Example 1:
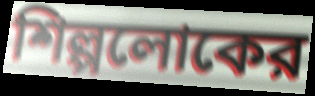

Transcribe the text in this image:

শিল্পলোকের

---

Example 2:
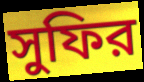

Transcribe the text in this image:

সুফির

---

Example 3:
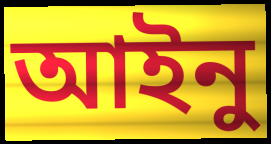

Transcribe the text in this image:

আইনু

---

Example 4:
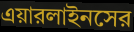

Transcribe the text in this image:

এয়ারলাইনসের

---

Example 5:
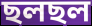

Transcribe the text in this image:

ছলছল